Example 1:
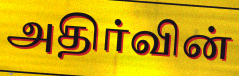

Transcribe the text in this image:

அதிர்வின்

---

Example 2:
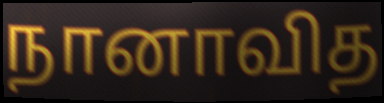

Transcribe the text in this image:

நானாவித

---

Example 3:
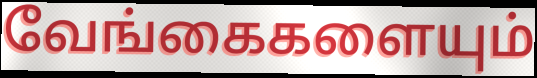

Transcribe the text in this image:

வேங்கைகளையும்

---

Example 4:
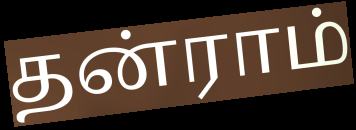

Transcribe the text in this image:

தன்ராம்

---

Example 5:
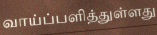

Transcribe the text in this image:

வாய்ப்பளித்துள்ளது